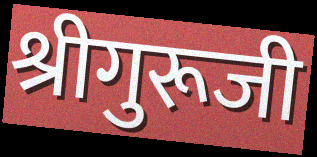
श्रीगुरूजी